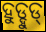
ହୁଡ୍ହୁଡ୍